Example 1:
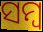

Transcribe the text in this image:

ସମ୍ବ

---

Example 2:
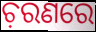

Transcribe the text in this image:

ଚ଼ରଣରେ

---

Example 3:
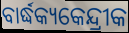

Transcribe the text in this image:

ବାର୍ଦ୍ଧକ୍ୟକେନ୍ଦ୍ରୀକ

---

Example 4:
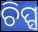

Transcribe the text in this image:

ଚିପ୍ସ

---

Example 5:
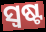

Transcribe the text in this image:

ସ୍ୱଷ୍ଟ